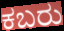
ಕಬರು